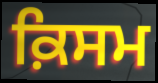
ਕ਼ਿਸਮ